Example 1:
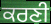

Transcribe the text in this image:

ਕਰਣੀ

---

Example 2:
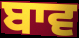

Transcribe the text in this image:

ਬਾਵ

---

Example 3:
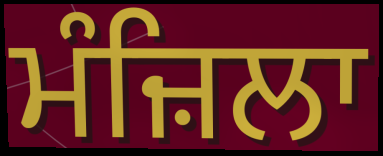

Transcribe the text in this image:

ਮੰਜ਼ਿਲਾ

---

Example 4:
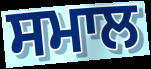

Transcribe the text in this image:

ਸਮਾਲ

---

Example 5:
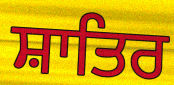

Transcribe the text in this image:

ਸ਼ਾਤਿਰ